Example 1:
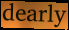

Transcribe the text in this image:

dearly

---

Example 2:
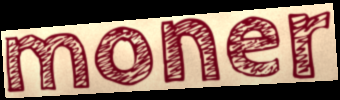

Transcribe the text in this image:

moner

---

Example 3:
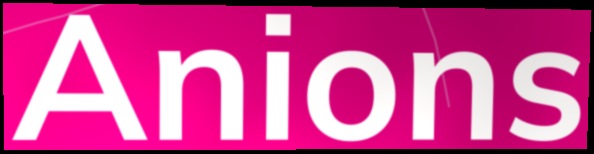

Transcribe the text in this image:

Anions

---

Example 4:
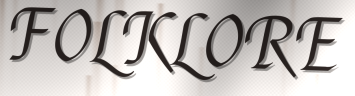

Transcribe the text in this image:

FOLKLORE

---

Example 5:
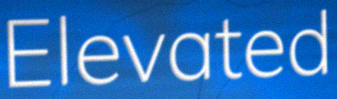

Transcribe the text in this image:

Elevated